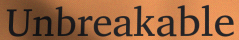
Unbreakable